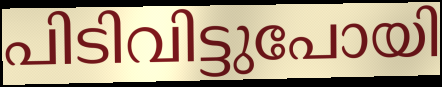
പിടിവിട്ടുപോയി